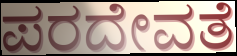
ಪರದೇವತೆ